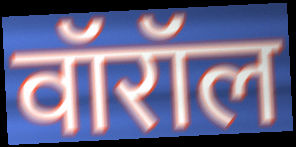
वॉरॉल